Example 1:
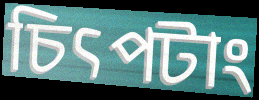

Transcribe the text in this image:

চিৎপটাং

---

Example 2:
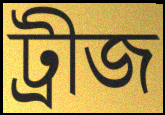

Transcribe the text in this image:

ট্রীজ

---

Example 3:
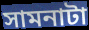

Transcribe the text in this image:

সামনাটা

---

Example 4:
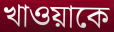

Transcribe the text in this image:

খাওয়াকে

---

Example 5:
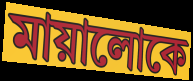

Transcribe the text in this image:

মায়ালোকে